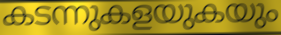
കടന്നുകളയുകയും